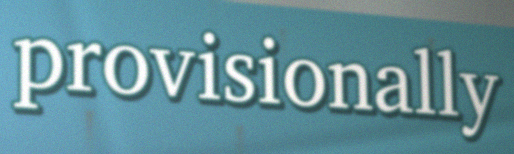
provisionally